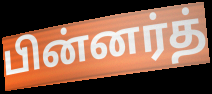
பின்னர்த்